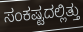
ಸಂಕಷ್ಟದಲ್ಲಿತ್ತು